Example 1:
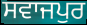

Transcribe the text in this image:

ਸਵਾਜਪੁਰ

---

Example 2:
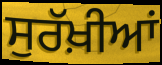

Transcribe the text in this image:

ਸੁਰੱਖ਼ੀਆਂ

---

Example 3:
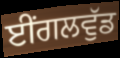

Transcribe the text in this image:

ਈਂਗਲਵੁੱਡ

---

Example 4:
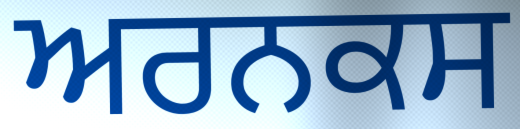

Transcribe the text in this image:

ਅਰਨਕਸ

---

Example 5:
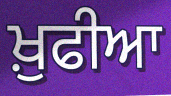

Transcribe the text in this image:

ਖ਼ੁਫੀਆ